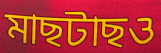
মাছটাছও